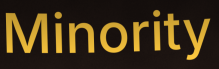
Minority